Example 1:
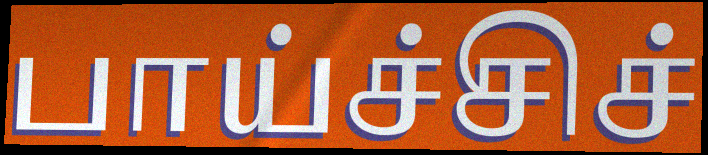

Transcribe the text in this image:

பாய்ச்சிச்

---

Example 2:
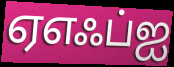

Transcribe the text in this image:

ஏஎஃப்ஐ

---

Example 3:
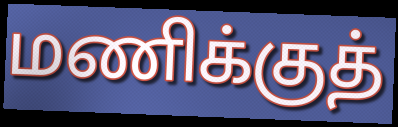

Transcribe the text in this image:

மணிக்குத்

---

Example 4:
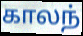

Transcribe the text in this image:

காலந்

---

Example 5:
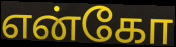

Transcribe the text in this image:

என்கோ